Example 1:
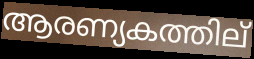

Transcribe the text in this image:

ആരണ്യകത്തില്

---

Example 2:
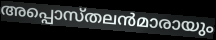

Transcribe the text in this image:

അപ്പൊസ്തലൻമാരായും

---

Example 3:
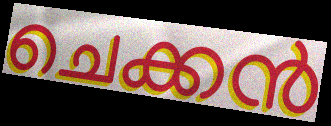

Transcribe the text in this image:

ചെക്കൻ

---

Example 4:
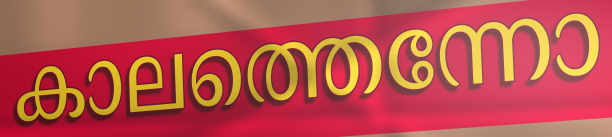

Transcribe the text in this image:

കാലത്തെന്നോ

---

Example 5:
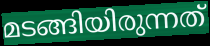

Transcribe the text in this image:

മടങ്ങിയിരുന്നത്